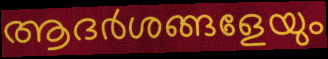
ആദർശങ്ങളേയും